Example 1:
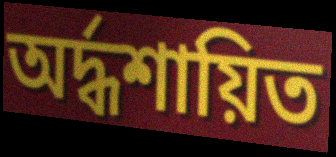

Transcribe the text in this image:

অর্দ্ধশায়িত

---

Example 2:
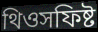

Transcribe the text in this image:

থিওসফিষ্ট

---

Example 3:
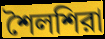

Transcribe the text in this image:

শৈলশিরা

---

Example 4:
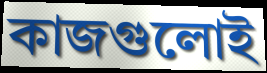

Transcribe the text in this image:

কাজগুলোই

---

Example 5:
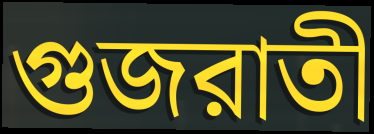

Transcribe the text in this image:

গুজরাতী